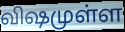
விஷமுள்ள